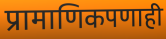
प्रामाणिकपणाही